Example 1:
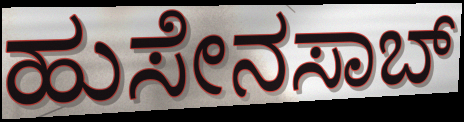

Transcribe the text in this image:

ಹುಸೇನಸಾಬ್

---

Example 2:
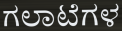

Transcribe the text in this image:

ಗಲಾಟೆಗಳ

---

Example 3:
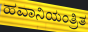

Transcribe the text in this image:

ಹವಾನಿಯಂತ್ರಿತ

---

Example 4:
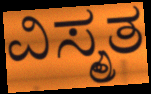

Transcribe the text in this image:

ವಿಸ್ಮೃತ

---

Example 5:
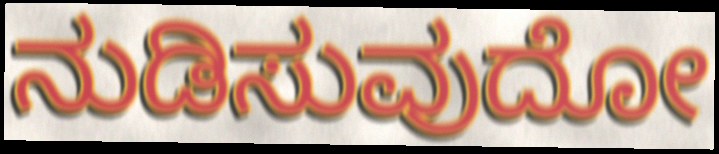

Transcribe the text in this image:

ನುಡಿಸುವುದೋ